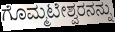
ಗೊಮ್ಮಟೇಶ್ವರನನ್ನು